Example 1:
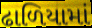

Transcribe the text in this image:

ઢાળિયામાં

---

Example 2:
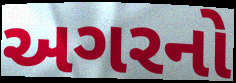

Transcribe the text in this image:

અગરનો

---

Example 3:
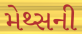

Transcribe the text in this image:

મેથ્સની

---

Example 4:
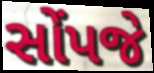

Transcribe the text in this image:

સોંપજે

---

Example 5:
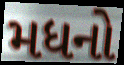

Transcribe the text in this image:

મધનો